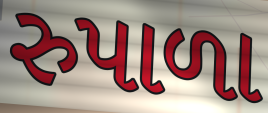
રુપાળા